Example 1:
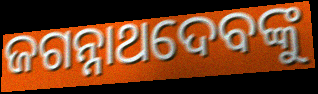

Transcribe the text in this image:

ଜଗନ୍ନାଥଦେବଙ୍କୁ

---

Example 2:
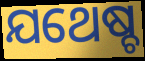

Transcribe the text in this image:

ଯଥେଷ୍ଚ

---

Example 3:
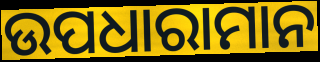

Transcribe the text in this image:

ଉପଧାରାମାନ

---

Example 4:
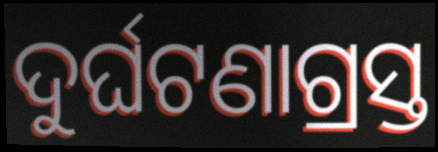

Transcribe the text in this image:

ଦୁର୍ଘଟଣାଗ୍ରସ୍ତ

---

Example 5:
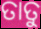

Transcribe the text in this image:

ତାତୁ